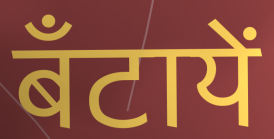
बँटायें